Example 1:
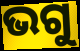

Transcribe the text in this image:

ଭଗୁ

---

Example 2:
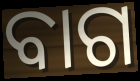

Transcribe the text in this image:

ବାଗ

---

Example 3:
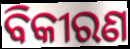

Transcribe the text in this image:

ବିକୀରଣ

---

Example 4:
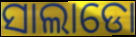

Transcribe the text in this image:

ସାଲାଡୋ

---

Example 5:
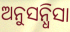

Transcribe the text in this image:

ଅନୁସନ୍ଧିସା